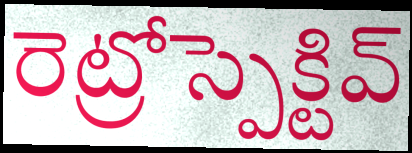
రెట్రోస్పెక్టివ్